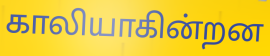
காலியாகின்றன